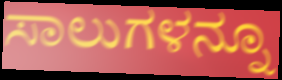
ಸಾಲುಗಳನ್ನೂ